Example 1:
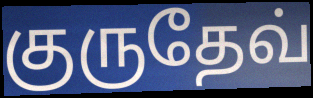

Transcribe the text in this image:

குருதேவ்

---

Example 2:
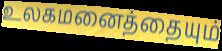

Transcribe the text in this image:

உலகமனைத்தையும்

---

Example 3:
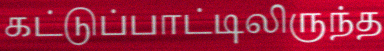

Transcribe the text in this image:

கட்டுப்பாட்டிலிருந்த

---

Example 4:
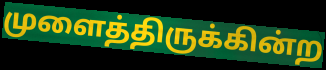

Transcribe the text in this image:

முளைத்திருக்கின்ற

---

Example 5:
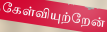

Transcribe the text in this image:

கேள்வியுற்றேன்